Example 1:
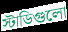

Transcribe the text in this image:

স্টাডিগুলো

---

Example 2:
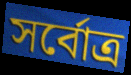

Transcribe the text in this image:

সর্বোত্র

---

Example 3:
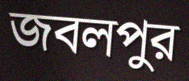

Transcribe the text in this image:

জবলপুর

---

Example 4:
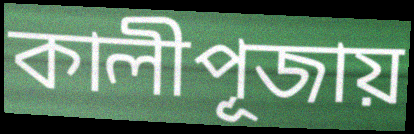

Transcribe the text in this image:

কালীপূজায়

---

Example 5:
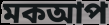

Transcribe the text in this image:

মকআপ